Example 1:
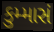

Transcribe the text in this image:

કુમ્માસં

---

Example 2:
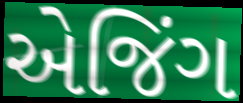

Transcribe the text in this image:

એજિંગ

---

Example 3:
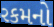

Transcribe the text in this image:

રકમનો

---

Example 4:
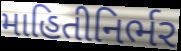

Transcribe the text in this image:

માહિતીનિર્ભર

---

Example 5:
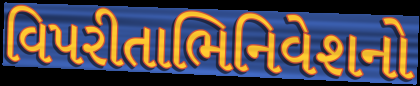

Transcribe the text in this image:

વિપરીતાભિનિવેશનો